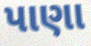
પાણા